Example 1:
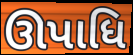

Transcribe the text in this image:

ઊપાધિ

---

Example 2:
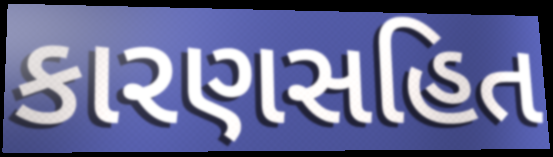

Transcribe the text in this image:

કારણસહિત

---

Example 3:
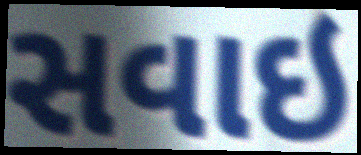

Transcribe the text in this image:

સવાઇ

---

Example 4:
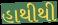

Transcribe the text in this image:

હાથીથી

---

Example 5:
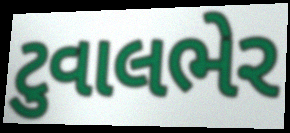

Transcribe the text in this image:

ટુવાલભેર